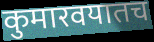
कुमारवयातच